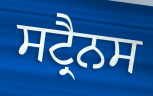
ਸਟ੍ਰੈਨਸ